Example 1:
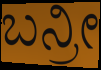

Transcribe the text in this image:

ಬನ್ರೀ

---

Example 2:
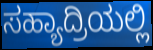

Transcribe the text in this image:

ಸಹ್ಯಾದ್ರಿಯಲ್ಲಿ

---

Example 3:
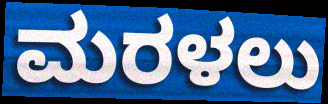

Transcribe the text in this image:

ಮರಳಲು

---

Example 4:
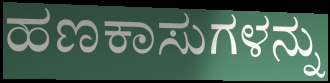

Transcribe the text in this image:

ಹಣಕಾಸುಗಳನ್ನು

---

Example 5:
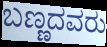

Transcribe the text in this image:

ಬಣ್ಣದವರು